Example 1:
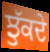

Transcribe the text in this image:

ਝੁੱਕਦੇ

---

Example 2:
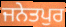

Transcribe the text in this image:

ਜਨੇਤਪੁਰ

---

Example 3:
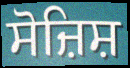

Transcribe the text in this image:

ਸੋਜ਼ਿਸ਼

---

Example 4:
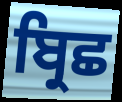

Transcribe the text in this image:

ਬ੍ਰਿਛ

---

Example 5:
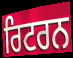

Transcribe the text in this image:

ਰਿਟਰਨ